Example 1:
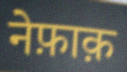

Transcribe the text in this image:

नेफ़ाक़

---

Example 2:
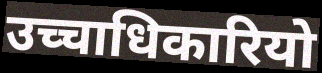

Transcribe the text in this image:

उच्चाधिकारियो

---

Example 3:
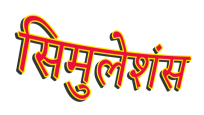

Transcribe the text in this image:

सिमुलेशंस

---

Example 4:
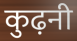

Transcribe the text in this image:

कुढ़नी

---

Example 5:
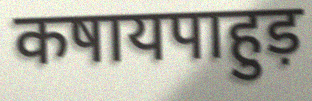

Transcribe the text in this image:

कषायपाहुड़